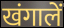
खंगालें